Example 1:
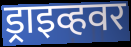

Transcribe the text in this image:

ड्राइव्हवर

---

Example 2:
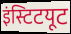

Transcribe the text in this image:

इंस्टिटयूट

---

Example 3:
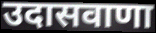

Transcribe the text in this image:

उदासवाणा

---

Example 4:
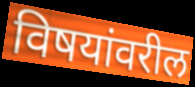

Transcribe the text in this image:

विषयांवरील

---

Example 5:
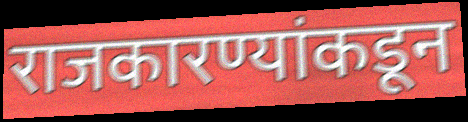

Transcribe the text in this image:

राजकारण्यांकडून